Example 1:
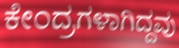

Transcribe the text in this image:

ಕೇಂದ್ರಗಳಾಗಿದ್ದವು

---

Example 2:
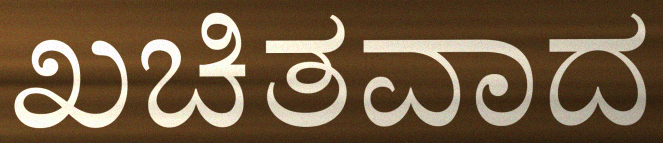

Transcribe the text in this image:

ಖಚಿತವಾದ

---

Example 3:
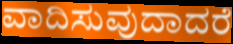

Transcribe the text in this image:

ವಾದಿಸುವುದಾದರೆ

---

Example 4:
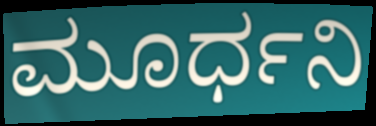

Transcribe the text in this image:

ಮೂರ್ಧನಿ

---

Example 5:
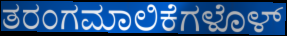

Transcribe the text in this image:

ತರಂಗಮಾಲಿಕೆಗಳೊಳ್